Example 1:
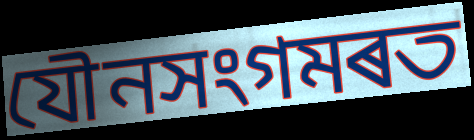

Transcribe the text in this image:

যৌনসংগমৰত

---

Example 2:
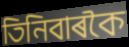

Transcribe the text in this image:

তিনিবাৰকৈ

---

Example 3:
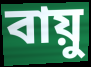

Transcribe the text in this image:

বায়ু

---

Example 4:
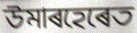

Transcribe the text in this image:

উমাৰহেৰেত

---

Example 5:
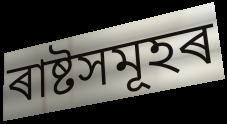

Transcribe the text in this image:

ৰাষ্টসমূহৰ